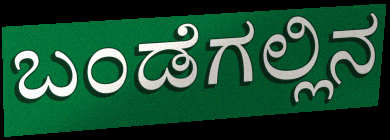
ಬಂಡೆಗಲ್ಲಿನ